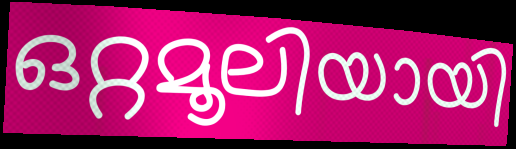
ഒറ്റമൂലിയായി